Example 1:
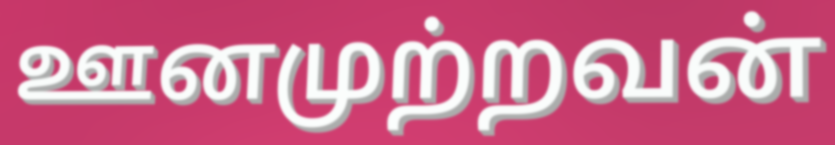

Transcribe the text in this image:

ஊனமுற்றவன்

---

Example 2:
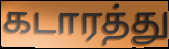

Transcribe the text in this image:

கடாரத்து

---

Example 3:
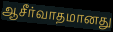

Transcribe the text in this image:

ஆசீர்வாதமானது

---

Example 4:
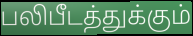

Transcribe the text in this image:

பலிபீடத்துக்கும்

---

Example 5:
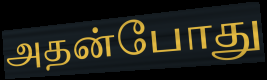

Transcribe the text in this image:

அதன்போது